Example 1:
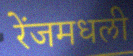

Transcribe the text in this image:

रेंजमधली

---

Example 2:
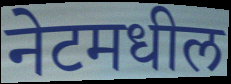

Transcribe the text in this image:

नेटमधील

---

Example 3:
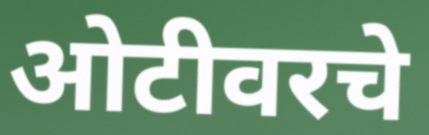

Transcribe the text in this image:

ओटीवरचे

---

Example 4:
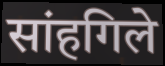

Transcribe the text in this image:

सांहगिले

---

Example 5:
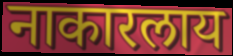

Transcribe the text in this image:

नाकारलाय